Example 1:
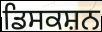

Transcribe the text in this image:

ਡਿਸਕਸ਼ਨ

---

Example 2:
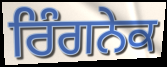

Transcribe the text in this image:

ਰਿੰਗਨੇਕ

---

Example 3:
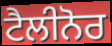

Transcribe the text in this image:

ਟੈਲੀਨੋਰ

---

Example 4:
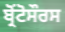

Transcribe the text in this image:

ਬ੍ਰੋਂਟੋਸੌਰਸ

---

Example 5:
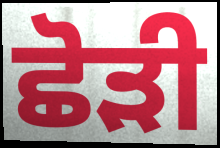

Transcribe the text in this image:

ਛੋੜੀ